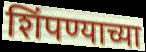
शिंपण्याच्या